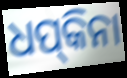
ଧପ୍‍କିନା